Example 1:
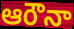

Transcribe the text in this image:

ఆరౌనా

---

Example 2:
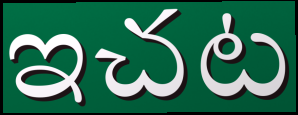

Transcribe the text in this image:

ఇచట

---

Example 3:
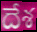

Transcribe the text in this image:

దేశ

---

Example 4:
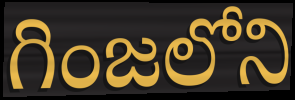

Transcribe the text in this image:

గింజలోని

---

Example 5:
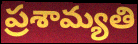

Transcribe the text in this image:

ప్రశామ్యతి